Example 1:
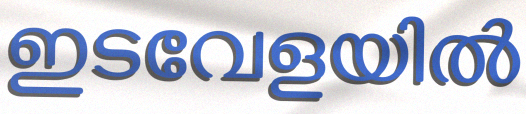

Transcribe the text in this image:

ഇടവേളയിൽ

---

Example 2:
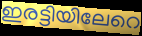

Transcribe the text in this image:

ഇരട്ടിയിലേറെ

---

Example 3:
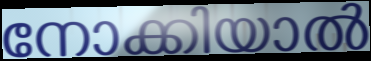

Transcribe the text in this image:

നോക്കിയാൽ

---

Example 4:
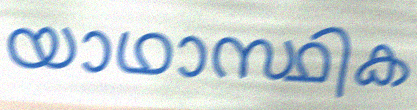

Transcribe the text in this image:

യാഥാസ്ഥിക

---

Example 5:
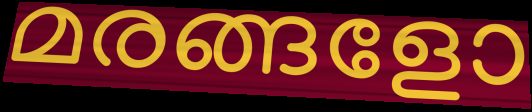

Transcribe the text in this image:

മരങ്ങളോ